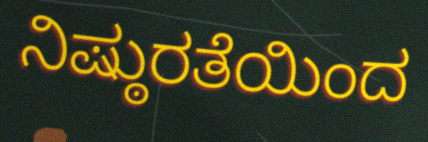
ನಿಷ್ಠುರತೆಯಿಂದ